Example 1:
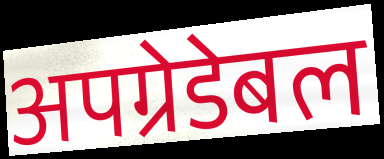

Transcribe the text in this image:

अपग्रेडेबल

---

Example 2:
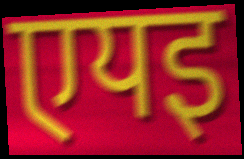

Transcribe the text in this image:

एयइ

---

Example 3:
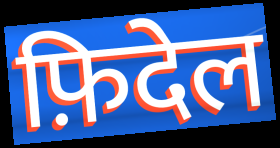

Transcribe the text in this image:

फ़िदेल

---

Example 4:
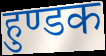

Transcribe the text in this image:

हुण्डक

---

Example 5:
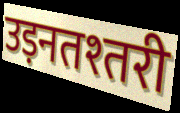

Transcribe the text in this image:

उड़नतश्तरी